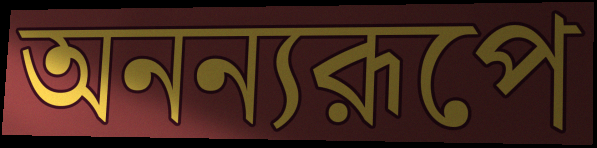
অনন্যরূপে